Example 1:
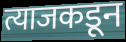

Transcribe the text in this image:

त्याजकडून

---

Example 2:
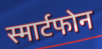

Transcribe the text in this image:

स्मार्टफोन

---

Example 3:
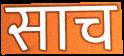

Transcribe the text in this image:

साच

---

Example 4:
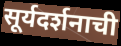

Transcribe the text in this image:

सूर्यदर्शनाची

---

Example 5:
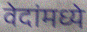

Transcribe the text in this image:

वेदांमध्ये